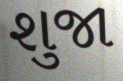
શુજા